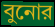
বুনোর